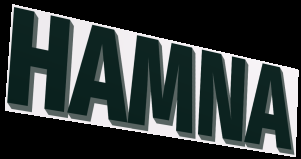
HAMNA